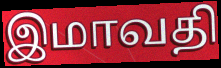
இமாவதி